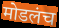
मोडलंच